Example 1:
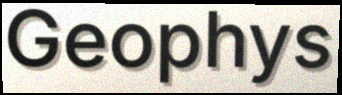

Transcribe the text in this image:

Geophys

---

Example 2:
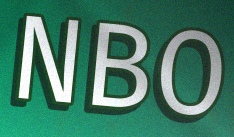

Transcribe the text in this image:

NBO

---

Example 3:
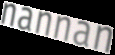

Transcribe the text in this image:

nannan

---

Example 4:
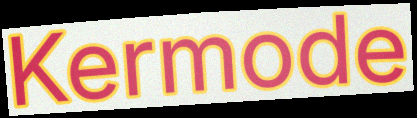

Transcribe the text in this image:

Kermode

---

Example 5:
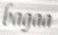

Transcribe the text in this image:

bagaa